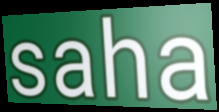
saha